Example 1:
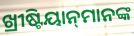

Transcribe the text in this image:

ଖ୍ରୀଷ୍ଟିୟାନ୍‌ମାନଙ୍କ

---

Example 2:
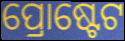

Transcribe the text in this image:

ପ୍ରୋଷ୍ଟେଟ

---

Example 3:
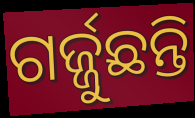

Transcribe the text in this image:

ଗର୍ଜ୍ଜୁଛନ୍ତି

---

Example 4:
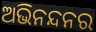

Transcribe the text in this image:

ଅଭିନନ୍ଦନର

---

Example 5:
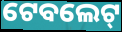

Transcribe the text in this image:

ଟେବଲେଟ୍